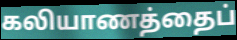
கலியாணத்தைப்